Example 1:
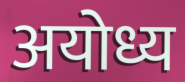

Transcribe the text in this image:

अयोध्य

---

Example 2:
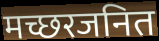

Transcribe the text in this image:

मच्छरजनित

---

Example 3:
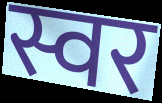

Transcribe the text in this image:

स्‍वर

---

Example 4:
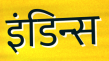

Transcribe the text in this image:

इंडिन्स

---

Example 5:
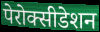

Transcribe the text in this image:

पेरोक्सीडेशन